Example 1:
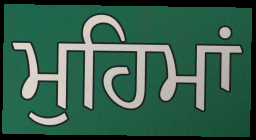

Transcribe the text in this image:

ਮੁਹਿਮਾਂ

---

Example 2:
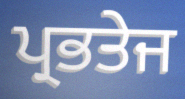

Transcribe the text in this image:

ਪ੍ਰਭਤੇਜ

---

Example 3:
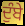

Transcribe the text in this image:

ਦੁੰਬੇ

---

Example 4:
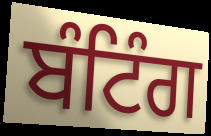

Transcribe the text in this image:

ਬੰਟਿੰਗ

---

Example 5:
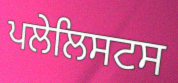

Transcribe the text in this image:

ਪਲੇਲਿਸਟਸ